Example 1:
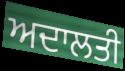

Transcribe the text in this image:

ਅਦਾਲਤੀ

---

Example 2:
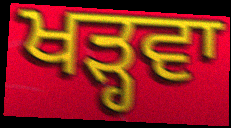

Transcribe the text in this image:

ਖੜ੍ਹਵਾ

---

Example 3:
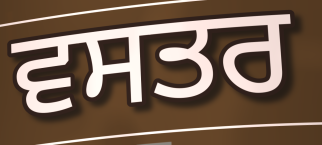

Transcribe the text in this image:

ਵਸਤਰ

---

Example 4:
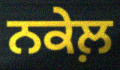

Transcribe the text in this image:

ਨਕੇਲ਼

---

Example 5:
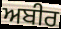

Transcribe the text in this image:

ਅਬੀਰ